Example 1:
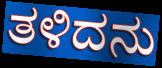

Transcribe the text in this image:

ತಳಿದನು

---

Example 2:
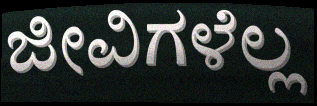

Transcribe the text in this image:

ಜೀವಿಗಳೆಲ್ಲ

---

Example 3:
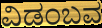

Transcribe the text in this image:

ವಿಡಂಬವ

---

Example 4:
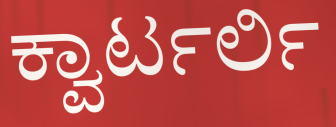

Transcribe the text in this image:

ಕ್ವಾರ್ಟರ್ಲಿ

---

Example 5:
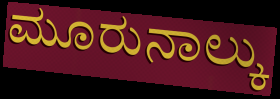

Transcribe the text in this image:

ಮೂರುನಾಲ್ಕು